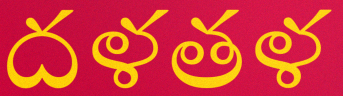
దళతళ